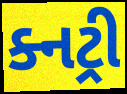
ક્નટ્રી